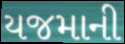
યજમાની